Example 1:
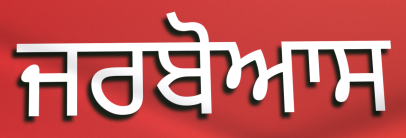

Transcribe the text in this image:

ਜਰਬੋਆਸ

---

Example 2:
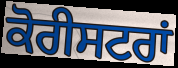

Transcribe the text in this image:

ਕੋਰੀਸਟਰਾਂ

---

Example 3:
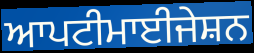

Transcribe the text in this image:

ਆਪਟੀਮਾਈਜੇਸ਼ਨ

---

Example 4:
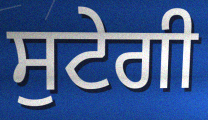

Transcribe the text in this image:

ਸੁਟੇਗੀ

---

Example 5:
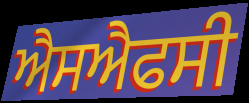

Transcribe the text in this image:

ਐਸਐਫਸੀ